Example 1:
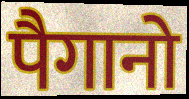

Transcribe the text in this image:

पैगानो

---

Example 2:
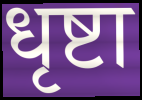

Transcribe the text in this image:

धृष्टा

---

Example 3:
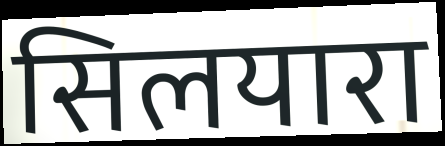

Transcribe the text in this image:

सिलयारा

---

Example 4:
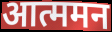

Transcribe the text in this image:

आत्ममन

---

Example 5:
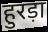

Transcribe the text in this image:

हुरड़ा